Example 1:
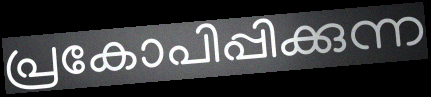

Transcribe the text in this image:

പ്രകോപിപ്പിക്കുന്ന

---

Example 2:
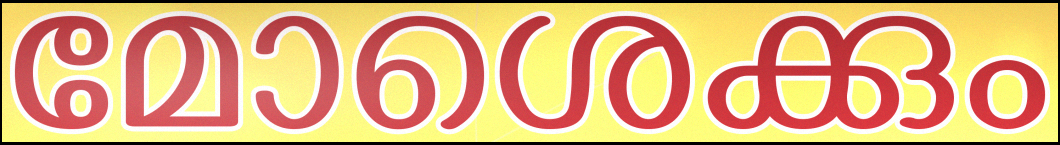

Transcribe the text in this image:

മോശെക്കും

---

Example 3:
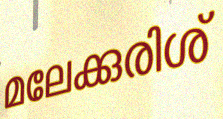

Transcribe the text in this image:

മലേക്കുരിശ്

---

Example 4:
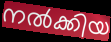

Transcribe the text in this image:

നൽക്കിയ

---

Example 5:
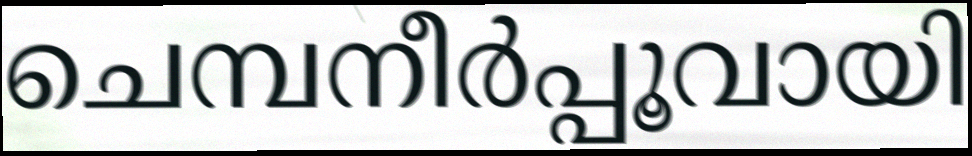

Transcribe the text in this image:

ചെമ്പനീർപ്പൂവായി